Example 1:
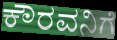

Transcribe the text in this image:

ಕೌರವನಿಗೆ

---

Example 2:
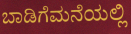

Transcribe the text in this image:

ಬಾಡಿಗೆಮನೆಯಲ್ಲಿ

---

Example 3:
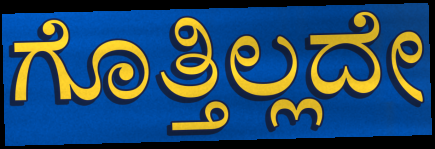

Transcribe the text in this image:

ಗೊತ್ತಿಲ್ಲದೇ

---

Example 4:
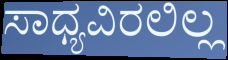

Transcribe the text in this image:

ಸಾಧ್ಯವಿರಲಿಲ್ಲ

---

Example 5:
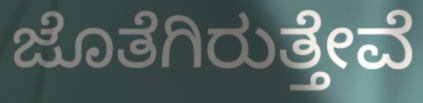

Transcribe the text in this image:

ಜೊತೆಗಿರುತ್ತೇವೆ